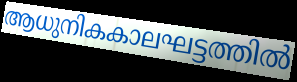
ആധുനികകാലഘട്ടത്തിൽ